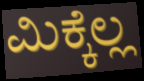
ಮಿಕ್ಕೆಲ್ಲ